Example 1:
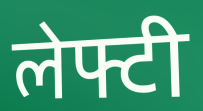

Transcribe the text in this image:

लेफ्टी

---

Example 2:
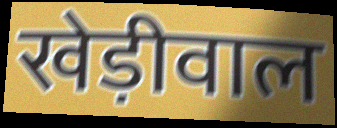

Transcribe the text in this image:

खेड़ीवाल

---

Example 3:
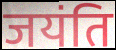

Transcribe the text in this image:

जयंति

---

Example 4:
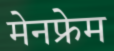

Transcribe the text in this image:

मेनफ्रेम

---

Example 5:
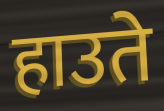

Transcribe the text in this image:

हाउते